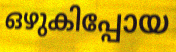
ഒഴുകിപ്പോയ